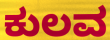
ಕುಲವ